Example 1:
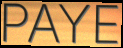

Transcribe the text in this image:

PAYE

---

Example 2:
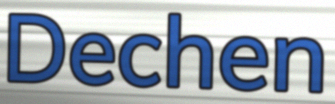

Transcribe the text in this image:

Dechen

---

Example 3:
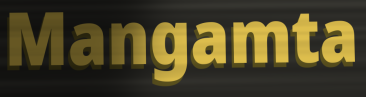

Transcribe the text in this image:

Mangamta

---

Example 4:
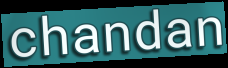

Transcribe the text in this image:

chandan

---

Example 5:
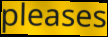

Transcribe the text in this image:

pleases